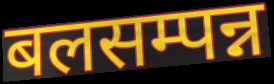
बलसम्पन्न